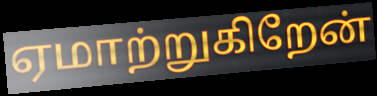
ஏமாற்றுகிறேன்